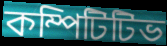
কম্পিটিটিভ